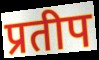
प्रतीप